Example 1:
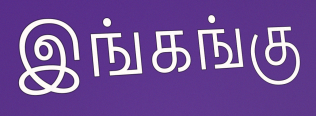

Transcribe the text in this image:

இங்கங்கு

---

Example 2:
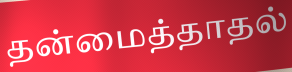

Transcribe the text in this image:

தன்மைத்தாதல்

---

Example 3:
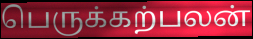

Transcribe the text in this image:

பெருக்கற்பலன்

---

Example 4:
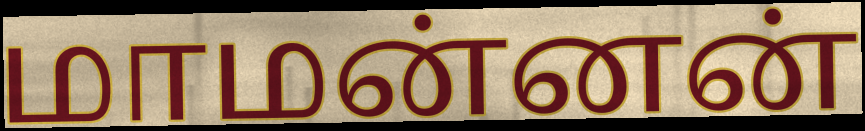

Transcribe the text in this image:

மாமன்னன்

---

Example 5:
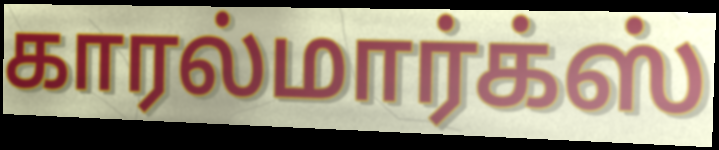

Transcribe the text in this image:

காரல்மார்க்ஸ்